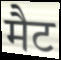
मैट